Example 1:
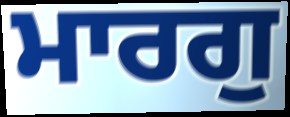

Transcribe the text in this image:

ਮਾਰਗੁ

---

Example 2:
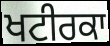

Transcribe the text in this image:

ਖਟੀਰਕਾ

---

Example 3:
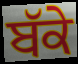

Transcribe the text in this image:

ਬੱਕੇ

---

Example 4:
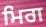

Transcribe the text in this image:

ਮਿਗ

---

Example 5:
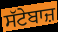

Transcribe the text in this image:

ਸੱਟੇਬਾਜ਼